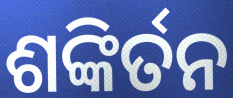
ଶଙ୍କିର୍ତନ